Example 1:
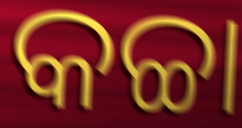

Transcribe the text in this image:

କଚ୍ଚା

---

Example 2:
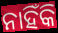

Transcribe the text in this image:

ନାହିଁକି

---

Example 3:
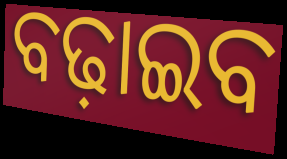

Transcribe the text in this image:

ବଢ଼ାଇବ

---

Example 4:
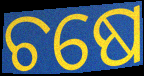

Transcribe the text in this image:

ଚଷେ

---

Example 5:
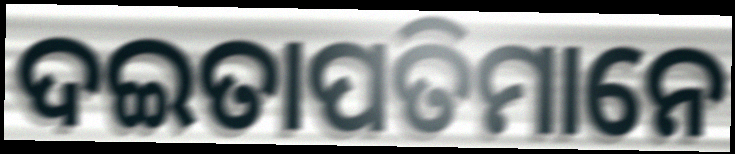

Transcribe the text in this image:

ଦଇତାପତିମାନେ